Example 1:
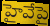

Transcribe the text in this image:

హైవేపై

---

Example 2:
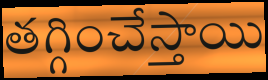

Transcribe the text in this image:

తగ్గించేస్తాయి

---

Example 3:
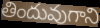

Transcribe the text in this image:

తిందువుగాని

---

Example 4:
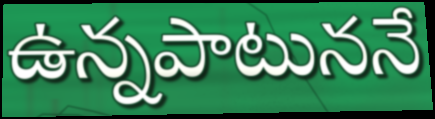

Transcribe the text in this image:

ఉన్నపాటుననే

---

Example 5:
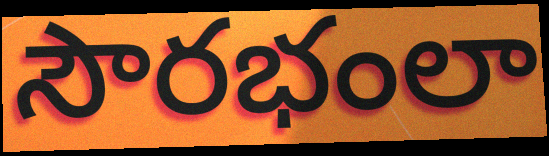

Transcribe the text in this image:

సౌరభంలా